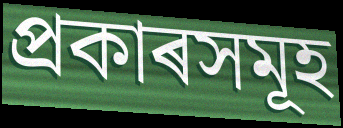
প্ৰকাৰসমূহ